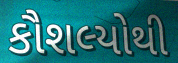
કૌશલ્યોથી